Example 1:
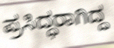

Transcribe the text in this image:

ಪ್ರಸಿದ್ಧರಾಗಿದ್ದ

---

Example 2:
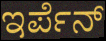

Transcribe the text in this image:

ಇರ್ಪೆನ್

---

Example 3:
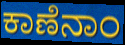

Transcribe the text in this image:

ಕಾಣೆನಾಂ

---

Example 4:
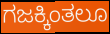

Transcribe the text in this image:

ಗಜಕ್ಕಿಂತಲೂ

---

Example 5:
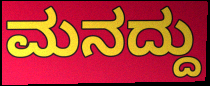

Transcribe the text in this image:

ಮನದ್ದು